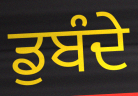
ਡੁਬੰਦੇ